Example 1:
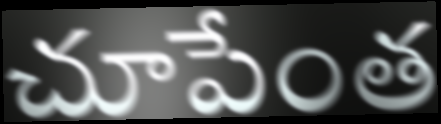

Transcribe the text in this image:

చూపేంత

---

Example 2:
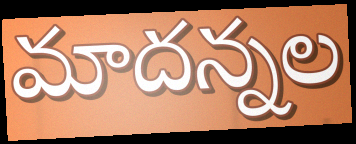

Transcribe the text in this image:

మాదన్నల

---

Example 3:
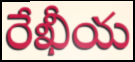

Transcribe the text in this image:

రేఖీయ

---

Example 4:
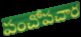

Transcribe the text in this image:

పంచోపచార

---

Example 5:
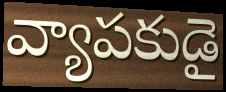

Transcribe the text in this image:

వ్యాపకుడై